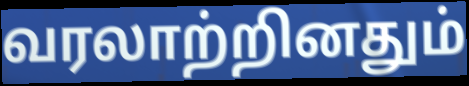
வரலாற்றினதும்